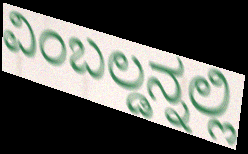
ವಿಂಬಲ್ಡನ್ನಲ್ಲಿ